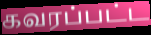
கவரப்பட்ட